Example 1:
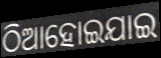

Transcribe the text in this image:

ଠିଆହୋଇଯାଇ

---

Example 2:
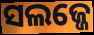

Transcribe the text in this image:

ସଲଜ୍ଜେ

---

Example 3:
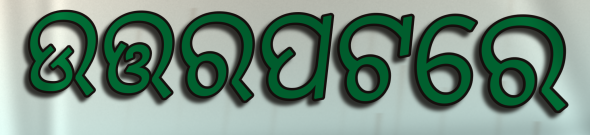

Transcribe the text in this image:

ଉତ୍ତରପଟରେ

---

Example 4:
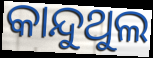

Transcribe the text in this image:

କାନ୍ଦୁଥୁଲ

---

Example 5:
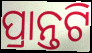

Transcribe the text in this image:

ପ୍ରାନ୍ତଟି